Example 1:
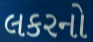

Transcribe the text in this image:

લકરનો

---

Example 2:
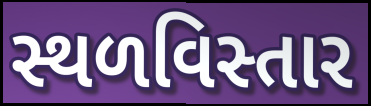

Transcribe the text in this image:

સ્થળવિસ્તાર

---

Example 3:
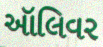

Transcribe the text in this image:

ઑલિવર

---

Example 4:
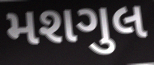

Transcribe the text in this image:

મશગુલ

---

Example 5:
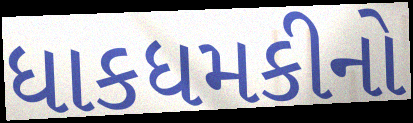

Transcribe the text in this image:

ધાકધમકીનો